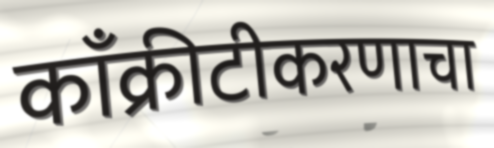
काँक्रीटीकरणाचा